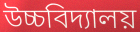
উচ্চবিদ্যালয়